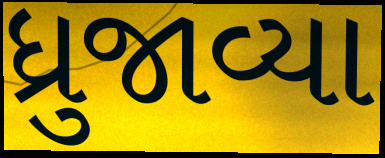
ધ્રુજાવ્યા